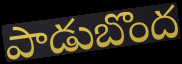
పాడుబొంద